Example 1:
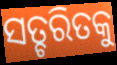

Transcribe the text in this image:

ସତ୍ଚରିତକୁ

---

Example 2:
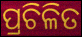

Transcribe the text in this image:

ପ୍ରଚିଳିତ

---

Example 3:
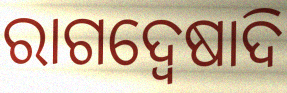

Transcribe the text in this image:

ରାଗଦ୍ୱେଷାଦି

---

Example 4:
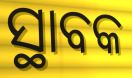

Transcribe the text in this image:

ସ୍ଥାବକ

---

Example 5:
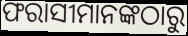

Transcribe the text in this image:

ଫରାସୀମାନଙ୍କଠାରୁ